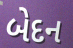
બેદન